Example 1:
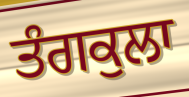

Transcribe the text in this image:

ਤੰਗਕੁਲਾ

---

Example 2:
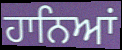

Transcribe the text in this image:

ਹਾਨਿਆਂ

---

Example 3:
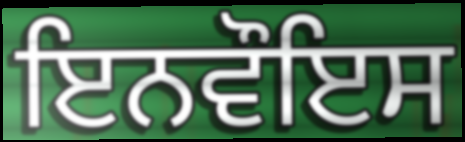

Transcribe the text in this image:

ਇਨਵੌਇਸ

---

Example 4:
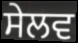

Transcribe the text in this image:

ਸੇਲਵ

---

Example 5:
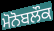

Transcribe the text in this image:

ਮੋਨੋਬਲੌਕ